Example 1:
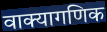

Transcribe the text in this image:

वाक्यागणिक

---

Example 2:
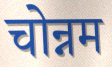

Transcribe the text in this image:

चोन्नम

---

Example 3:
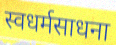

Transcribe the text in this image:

स्वधर्मसाधना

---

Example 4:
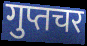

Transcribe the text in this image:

गुप्तचर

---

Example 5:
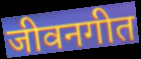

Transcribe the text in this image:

जीवनगीत